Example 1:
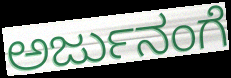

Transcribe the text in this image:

ಅರ್ಜುನಂಗೆ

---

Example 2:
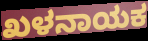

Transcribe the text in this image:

ಖಳನಾಯಕ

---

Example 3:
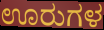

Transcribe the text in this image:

ಊರುಗಳ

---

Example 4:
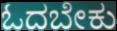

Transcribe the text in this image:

ಓದಬೇಕು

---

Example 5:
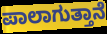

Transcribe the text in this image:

ಪಾಲಾಗುತ್ತಾನೆ